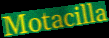
Motacilla